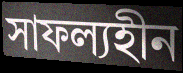
সাফল্যহীন